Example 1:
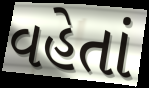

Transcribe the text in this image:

વહેતાં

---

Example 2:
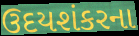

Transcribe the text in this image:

ઉદયશંકરના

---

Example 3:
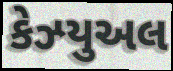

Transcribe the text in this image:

કેઝ્યુઅલ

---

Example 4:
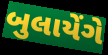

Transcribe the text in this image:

બુલાયેંગે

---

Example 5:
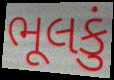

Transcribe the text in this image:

ભૂલકું